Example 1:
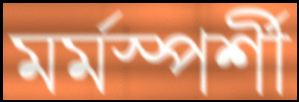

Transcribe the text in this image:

মৰ্মস্পৰ্শী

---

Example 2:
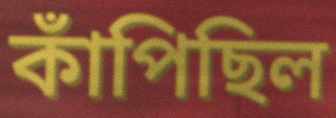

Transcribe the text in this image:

কাঁপিছিল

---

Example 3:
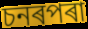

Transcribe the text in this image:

চনৰপৰা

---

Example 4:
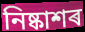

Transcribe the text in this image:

নিষ্কাশৰ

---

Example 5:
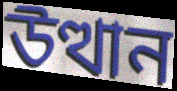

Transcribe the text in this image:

উত্থান